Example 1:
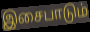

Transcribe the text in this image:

இசைபாடும்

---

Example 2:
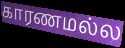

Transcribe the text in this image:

காரணமல்ல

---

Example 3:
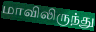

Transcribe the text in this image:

மாவிலிருந்து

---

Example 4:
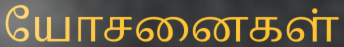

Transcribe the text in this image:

யோசனைகள்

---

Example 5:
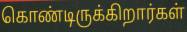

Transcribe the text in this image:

கொண்டிருக்கிறார்கள்